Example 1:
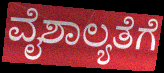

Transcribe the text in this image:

ವೈಶಾಲ್ಯತೆಗೆ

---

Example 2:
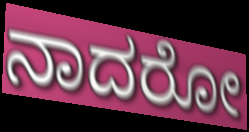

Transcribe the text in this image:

ನಾದರೋ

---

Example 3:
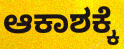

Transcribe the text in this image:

ಆಕಾಶಕ್ಕೆ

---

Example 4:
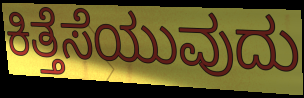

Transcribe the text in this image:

ಕಿತ್ತೆಸೆಯುವುದು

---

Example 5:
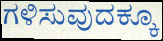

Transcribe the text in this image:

ಗಳಿಸುವುದಕ್ಕೂ